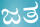
ಜತ